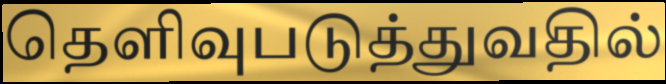
தெளிவுபடுத்துவதில்